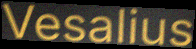
Vesalius